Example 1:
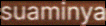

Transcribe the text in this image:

suaminya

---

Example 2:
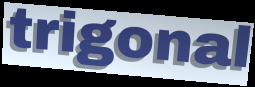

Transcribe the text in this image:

trigonal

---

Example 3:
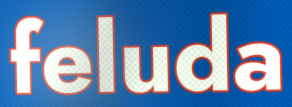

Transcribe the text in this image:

feluda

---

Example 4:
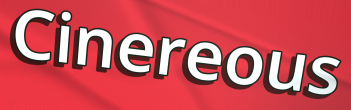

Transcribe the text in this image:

Cinereous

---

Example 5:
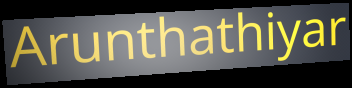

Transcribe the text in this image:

Arunthathiyar